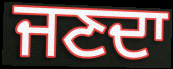
ਜਣਦਾ